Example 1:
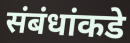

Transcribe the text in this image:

संबंधांकडे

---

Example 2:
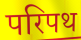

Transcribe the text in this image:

परिपथ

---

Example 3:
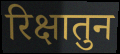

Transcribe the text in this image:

रिक्षातुन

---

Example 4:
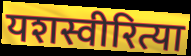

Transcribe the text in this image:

यशस्वीरित्या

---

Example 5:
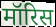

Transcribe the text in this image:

मॉरिस